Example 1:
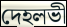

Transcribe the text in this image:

দেহলভী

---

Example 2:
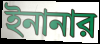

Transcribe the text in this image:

ইনানার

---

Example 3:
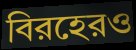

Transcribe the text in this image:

বিরহেরও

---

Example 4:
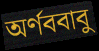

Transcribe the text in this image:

অর্ণববাবু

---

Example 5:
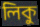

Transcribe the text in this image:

লিকু